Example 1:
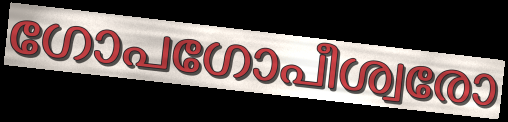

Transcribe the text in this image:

ഗോപഗോപീശ്വരോ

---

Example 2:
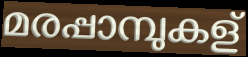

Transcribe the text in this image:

മരപ്പാമ്പുകള്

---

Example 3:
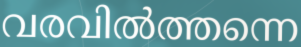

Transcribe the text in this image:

വരവിൽത്തന്നെ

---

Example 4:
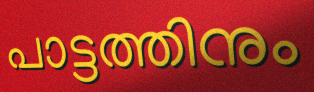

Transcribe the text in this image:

പാട്ടത്തിനും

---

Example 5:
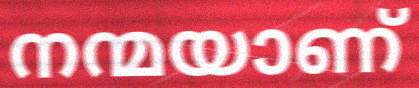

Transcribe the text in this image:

നന്മയാണ്